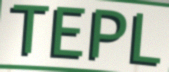
TEPL